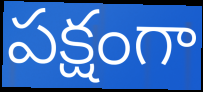
పక్షంగా